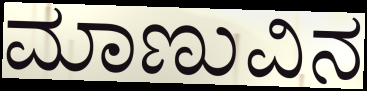
ಮಾಣುವಿನ